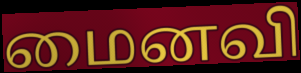
மைனவி